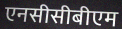
एनसीसीबीएम